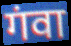
गंवा